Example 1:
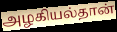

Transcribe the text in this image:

அழகியல்தான்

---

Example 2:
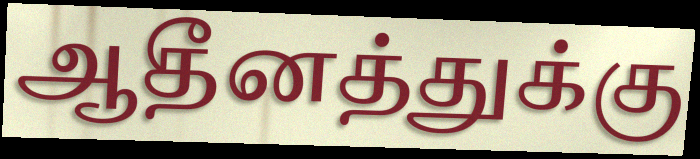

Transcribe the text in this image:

ஆதீனத்துக்கு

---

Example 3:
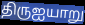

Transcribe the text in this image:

திருஐயாறு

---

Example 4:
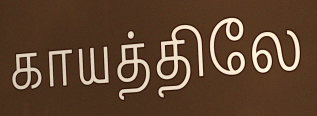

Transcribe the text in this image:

காயத்திலே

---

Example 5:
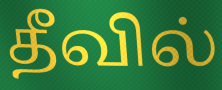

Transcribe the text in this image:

தீவில்